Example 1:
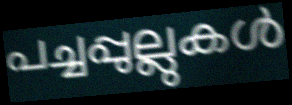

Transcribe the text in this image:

പച്ചപ്പുല്ലുകൾ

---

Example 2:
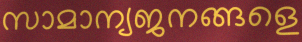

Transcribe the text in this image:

സാമാന്യജനങ്ങളെ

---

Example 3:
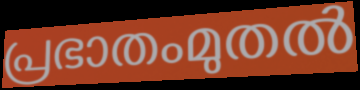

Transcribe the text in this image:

പ്രഭാതംമുതൽ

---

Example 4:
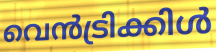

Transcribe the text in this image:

വെൻട്രിക്കിൾ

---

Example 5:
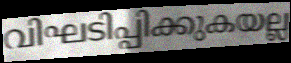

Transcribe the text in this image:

വിഘടിപ്പിക്കുകയല്ല